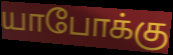
யாபோக்கு